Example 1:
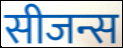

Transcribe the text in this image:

सीजन्स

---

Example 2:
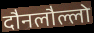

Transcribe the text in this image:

दौनलौल्लो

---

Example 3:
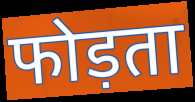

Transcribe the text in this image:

फोड़ता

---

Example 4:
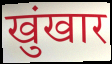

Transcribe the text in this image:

खुंखार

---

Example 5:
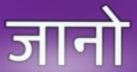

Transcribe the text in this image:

जानो